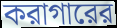
করাগারের